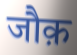
जौक़